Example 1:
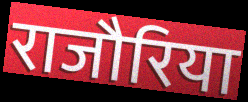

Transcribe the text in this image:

राजौरिया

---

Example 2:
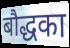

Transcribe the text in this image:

बौद्धका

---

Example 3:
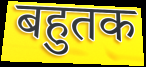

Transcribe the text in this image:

बहुतक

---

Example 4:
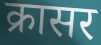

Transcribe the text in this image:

क्रासर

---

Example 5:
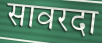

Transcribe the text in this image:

सावरदा